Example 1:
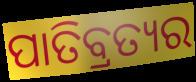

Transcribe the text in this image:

ପାତିବ୍ରତ୍ୟର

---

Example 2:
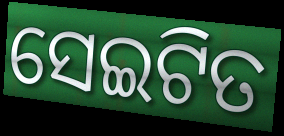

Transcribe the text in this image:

ସେଇଟିତ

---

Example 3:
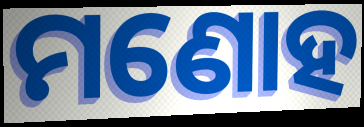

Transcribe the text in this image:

ମଣୋହ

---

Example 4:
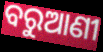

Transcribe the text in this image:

ବରୁଆଣୀ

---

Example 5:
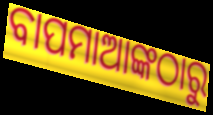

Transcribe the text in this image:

ବାପମାଆଙ୍କଠାରୁ